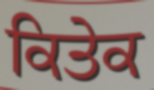
ਕਿਤੇਕ